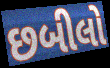
છબીલો